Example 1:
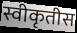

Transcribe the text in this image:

स्वीकृतीस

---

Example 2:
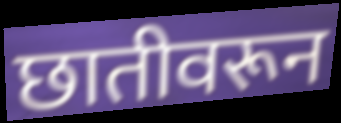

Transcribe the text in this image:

छातीवरून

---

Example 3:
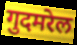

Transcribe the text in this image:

गुदमरेल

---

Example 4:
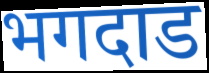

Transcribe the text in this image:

भगदाड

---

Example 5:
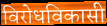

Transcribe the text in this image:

विरोधविकासी